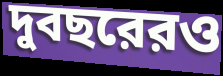
দুবছরেরও